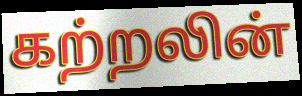
கற்றலின்